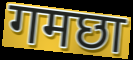
गमछा